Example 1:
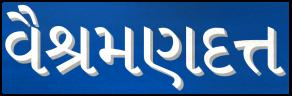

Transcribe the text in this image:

વૈશ્રમણદત્ત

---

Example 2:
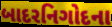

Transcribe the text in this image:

બાદરનિગોદના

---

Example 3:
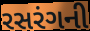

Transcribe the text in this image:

રસરંગની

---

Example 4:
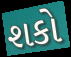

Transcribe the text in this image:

શકો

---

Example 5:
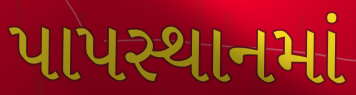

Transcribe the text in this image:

પાપસ્થાનમાં